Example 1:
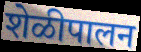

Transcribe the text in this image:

शेळीपालन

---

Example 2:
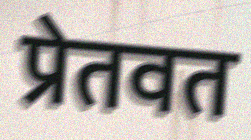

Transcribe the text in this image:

प्रेतवत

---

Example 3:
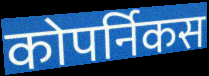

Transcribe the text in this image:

कोपर्निकस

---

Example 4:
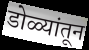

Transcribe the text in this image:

डोळ्यांतून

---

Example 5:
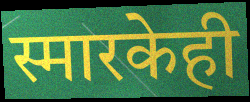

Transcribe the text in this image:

स्मारकेही